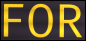
FOR